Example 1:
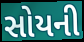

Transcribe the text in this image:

સોયની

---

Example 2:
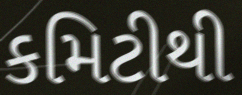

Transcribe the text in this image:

કમિટીથી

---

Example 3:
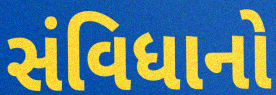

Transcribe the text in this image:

સંવિધાનો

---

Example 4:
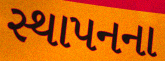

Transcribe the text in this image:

સ્થાપનના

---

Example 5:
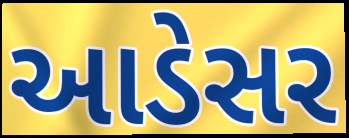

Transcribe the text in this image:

આડેસર